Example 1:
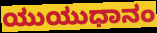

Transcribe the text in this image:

ಯುಯುಧಾನಂ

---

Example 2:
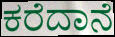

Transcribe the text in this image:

ಕರೆದಾನೆ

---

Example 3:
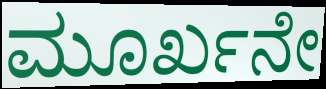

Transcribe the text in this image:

ಮೂರ್ಖನೇ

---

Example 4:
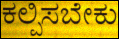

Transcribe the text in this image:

ಕಲ್ಪಿಸಬೇಕು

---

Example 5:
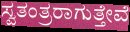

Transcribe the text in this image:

ಸ್ವತಂತ್ರರಾಗುತ್ತೇವೆ